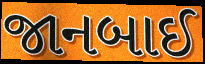
જાનબાઈ